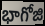
భాగోజి